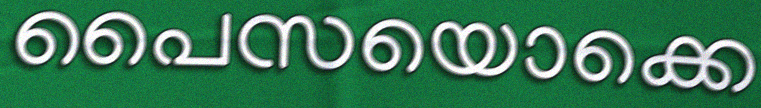
പൈസയൊക്കെ